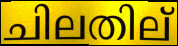
ചിലതില്